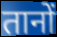
तानों